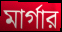
মার্গার